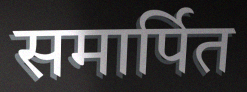
समार्पित